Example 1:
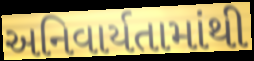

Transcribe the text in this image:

અનિવાર્યતામાંથી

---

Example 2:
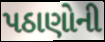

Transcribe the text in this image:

પઠાણોની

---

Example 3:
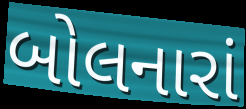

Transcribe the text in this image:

બોલનારાં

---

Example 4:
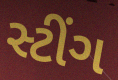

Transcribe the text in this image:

સ્ટીંગ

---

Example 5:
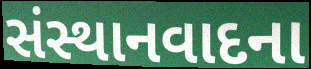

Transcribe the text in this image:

સંસ્થાનવાદના